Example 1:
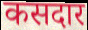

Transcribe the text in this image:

कसदार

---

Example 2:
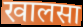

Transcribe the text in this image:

खालसा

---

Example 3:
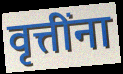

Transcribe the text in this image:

वृत्तींना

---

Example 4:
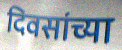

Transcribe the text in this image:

दिवसांच्या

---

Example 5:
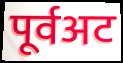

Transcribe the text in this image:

पूर्वअट